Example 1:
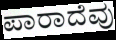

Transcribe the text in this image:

ಪಾರಾದೆವು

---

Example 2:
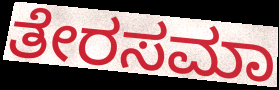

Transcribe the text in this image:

ತೇರಸಮಾ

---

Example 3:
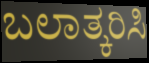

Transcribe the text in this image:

ಬಲಾತ್ಕರಿಸಿ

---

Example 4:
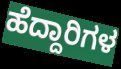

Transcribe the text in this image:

ಹೆದ್ದಾರಿಗಳ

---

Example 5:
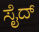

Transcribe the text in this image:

ಸೈದ್